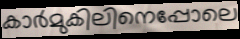
കാർമുകിലിനെപ്പോലെ